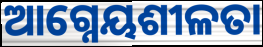
ଆଗ୍ନେୟଶୀଳତା